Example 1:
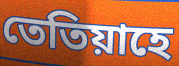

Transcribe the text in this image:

তেতিয়াহে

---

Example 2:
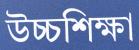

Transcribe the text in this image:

উচ্চশিক্ষা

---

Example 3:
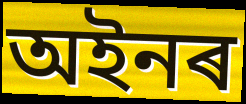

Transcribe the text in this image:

অইনৰ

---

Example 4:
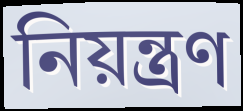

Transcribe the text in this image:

নিয়ন্ত্ৰণ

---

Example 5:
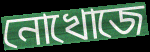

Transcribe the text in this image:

নোখোজে